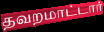
தவறமாட்டார்